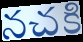
నచకి